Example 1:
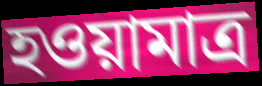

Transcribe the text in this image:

হওয়ামাত্র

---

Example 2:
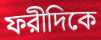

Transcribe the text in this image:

ফরীদিকে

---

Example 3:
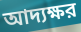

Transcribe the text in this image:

আদ্যক্ষর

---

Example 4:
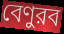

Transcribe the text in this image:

বেণুরব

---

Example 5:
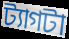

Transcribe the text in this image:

ট্যাগটা